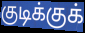
குடிக்குக்